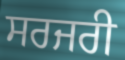
ਸਰਜਰੀ